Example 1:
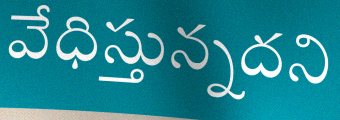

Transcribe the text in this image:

వేధిస్తున్నదని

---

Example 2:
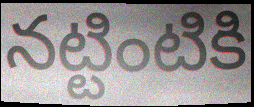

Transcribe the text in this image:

నట్టింటికి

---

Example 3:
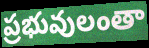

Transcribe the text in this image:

ప్రభువులంతా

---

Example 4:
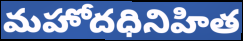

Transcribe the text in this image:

మహోదధినిహిత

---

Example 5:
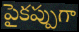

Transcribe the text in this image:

పైకప్పుగా